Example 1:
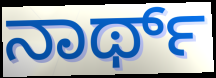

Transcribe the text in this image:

ನಾರ್ಥ್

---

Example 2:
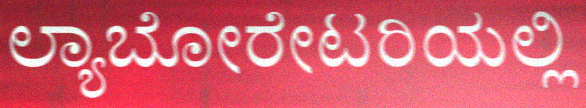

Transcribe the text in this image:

ಲ್ಯಾಬೋರೇಟರಿಯಲ್ಲಿ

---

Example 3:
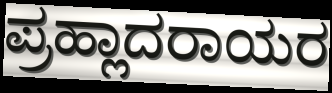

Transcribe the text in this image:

ಪ್ರಹ್ಲಾದರಾಯರ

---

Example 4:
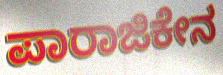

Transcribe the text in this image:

ಪಾರಾಜಿಕೇನ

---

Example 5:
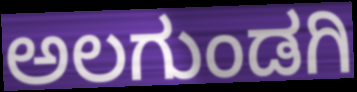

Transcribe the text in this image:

ಅಲಗುಂಡಗಿ